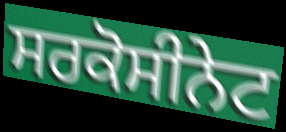
ਸਰਕੋਸੀਨੇਟ